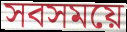
সবসময়ে